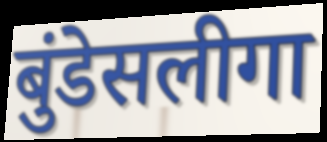
बुंडेसलीगा